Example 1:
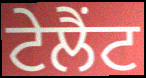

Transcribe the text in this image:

ਟੇਲੈਂਟ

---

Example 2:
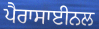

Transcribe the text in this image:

ਪੈਰਾਸਾਈਨਲ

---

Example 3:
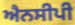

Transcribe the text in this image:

ਐਨਸੀਪੀ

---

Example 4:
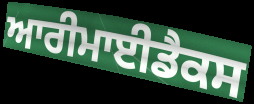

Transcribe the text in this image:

ਆਰੀਮਾਈਡੈਕਸ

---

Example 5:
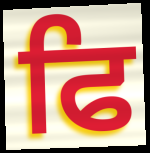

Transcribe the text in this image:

ਫਿ